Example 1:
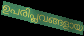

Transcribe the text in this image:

ഉപരിപ്ലവങ്ങളായ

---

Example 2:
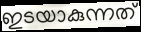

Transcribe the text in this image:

ഇടയാകുന്നത്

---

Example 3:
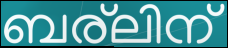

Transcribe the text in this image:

ബര്ലിന്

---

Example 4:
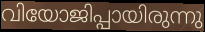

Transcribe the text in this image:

വിയോജിപ്പായിരുന്നു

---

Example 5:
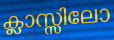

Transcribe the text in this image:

ക്ലാസ്സിലോ